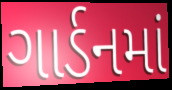
ગાર્ડનમાં